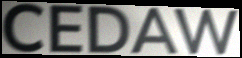
CEDAW